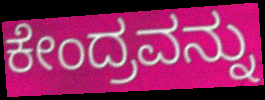
ಕೇಂದ್ರವನ್ನು